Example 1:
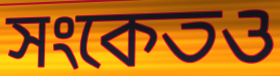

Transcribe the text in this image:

সংকেতও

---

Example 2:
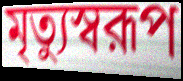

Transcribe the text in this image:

মৃত্যুস্বরূপ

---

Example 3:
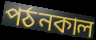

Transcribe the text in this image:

পঠনকাল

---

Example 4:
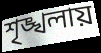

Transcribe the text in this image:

শৃঙ্খলায়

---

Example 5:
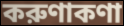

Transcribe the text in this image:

করুণাকণা